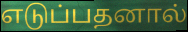
எடுப்பதனால்